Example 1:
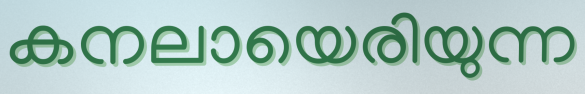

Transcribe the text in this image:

കനലായെരിയുന്ന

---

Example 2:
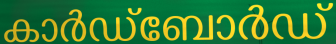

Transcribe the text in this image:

കാർഡ്ബോർഡ്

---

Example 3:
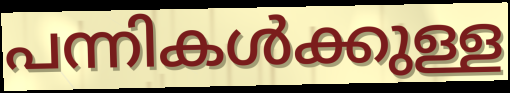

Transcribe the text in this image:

പന്നികൾക്കുള്ള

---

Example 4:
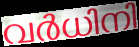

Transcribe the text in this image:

വർധിനി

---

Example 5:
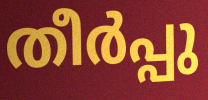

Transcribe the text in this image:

തീർപ്പു